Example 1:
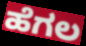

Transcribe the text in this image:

ಹೆಗಲ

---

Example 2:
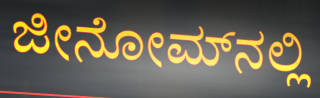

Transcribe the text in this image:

ಜೀನೋಮ್‌ನಲ್ಲಿ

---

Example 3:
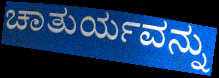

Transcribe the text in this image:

ಚಾತುರ್ಯವನ್ನು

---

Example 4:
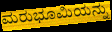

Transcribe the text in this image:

ಮರುಭೂಮಿಯನ್ನು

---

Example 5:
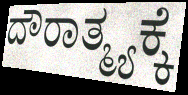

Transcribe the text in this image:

ದೌರಾತ್ಮ್ಯಕ್ಕೆ